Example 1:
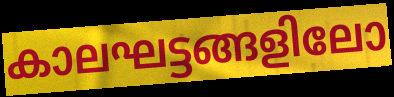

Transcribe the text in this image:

കാലഘട്ടങ്ങളിലോ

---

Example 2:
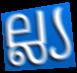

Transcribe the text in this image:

ല്ല്യ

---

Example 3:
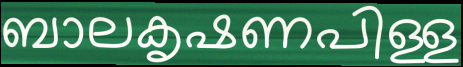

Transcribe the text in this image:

ബാലകൃഷണപിള്ള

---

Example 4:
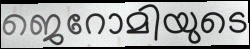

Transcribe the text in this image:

ജെറോമിയുടെ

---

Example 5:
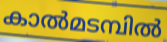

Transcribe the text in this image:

കാൽമടമ്പിൽ